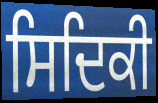
ਸਿਦਿਕੀ